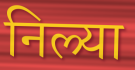
निल्या